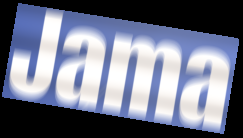
Jama